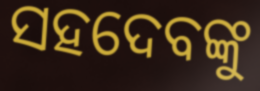
ସହଦେବଙ୍କୁ